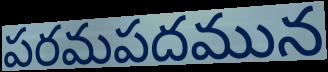
పరమపదమున